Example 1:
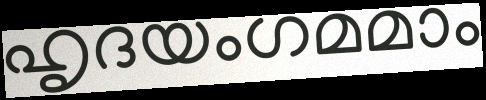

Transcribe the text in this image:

ഹൃദയംഗമമാം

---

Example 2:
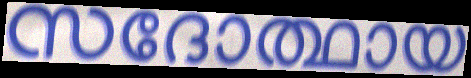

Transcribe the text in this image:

സദോത്ഥായ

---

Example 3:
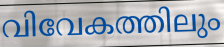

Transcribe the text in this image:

വിവേകത്തിലും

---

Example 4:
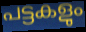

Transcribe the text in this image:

പട്ടകളും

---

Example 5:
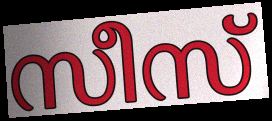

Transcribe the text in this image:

സീസ്